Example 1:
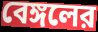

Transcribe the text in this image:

বেঙ্গলের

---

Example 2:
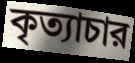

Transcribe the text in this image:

কৃত্যাচার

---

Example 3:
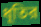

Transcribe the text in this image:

ধূতির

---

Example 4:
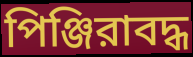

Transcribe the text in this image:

পিঞ্জিরাবদ্ধ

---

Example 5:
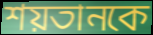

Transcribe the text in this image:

শয়তানকে